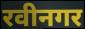
रवीनगर